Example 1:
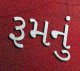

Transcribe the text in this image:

રૂમનું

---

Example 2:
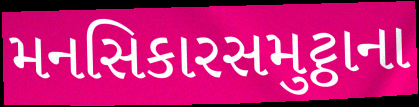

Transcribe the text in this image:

મનસિકારસમુટ્ઠાના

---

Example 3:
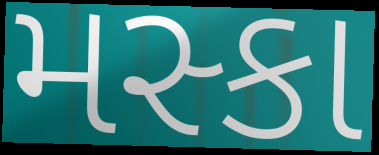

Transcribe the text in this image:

મસ્કા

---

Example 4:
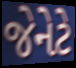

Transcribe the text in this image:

જેનેટે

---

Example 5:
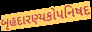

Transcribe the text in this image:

બૃહદારણ્યકોપનિષદ